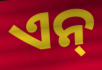
ଏନ୍